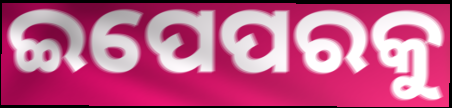
ଇପେପରକୁ